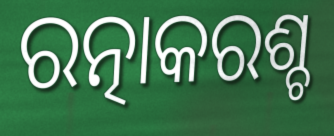
ରତ୍ନାକରଶ୍ଚ